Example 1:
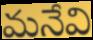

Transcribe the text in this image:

మనేవి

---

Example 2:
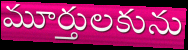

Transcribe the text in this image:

మూర్తులకును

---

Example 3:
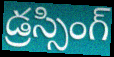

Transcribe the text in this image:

డ్రస్సింగ్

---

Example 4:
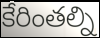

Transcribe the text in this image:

కేరింతల్ని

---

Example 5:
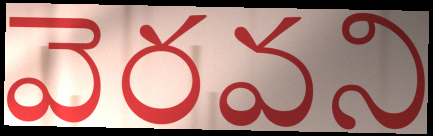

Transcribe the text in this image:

వెరవని